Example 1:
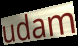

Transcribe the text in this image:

udam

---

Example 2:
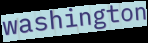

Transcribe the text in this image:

washington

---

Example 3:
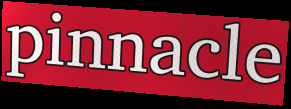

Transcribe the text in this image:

pinnacle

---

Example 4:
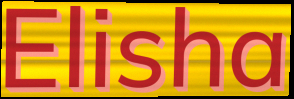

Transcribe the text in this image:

Elisha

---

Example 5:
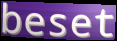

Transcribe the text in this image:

beset